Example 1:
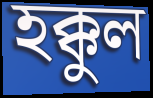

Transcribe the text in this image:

হক্কুল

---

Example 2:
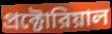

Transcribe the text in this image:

প্রক্টোরিয়াল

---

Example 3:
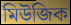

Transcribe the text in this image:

মিউজিক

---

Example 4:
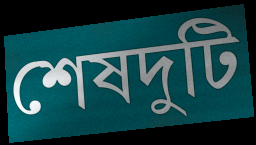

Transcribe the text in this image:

শেষদুটি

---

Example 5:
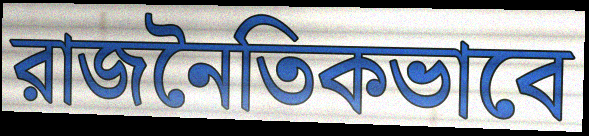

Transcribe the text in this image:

রাজনৈতিকভাবে